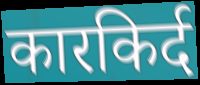
कारकिर्द